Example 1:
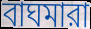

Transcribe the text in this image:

বাঘমারা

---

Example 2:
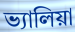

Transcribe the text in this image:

ভ্যালিয়া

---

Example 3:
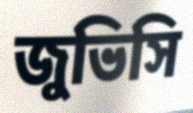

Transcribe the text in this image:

জুভিসি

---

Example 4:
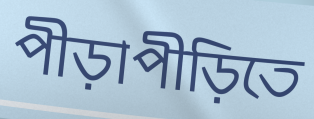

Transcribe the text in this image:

পীড়াপীড়িতে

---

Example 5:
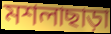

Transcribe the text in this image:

মশলাছাড়া